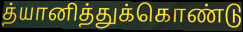
த்யானித்துக்கொண்டு